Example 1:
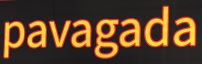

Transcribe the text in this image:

pavagada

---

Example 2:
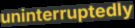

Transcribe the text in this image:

uninterruptedly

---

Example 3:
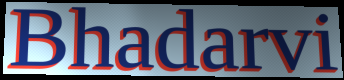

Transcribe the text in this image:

Bhadarvi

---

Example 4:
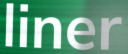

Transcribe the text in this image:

liner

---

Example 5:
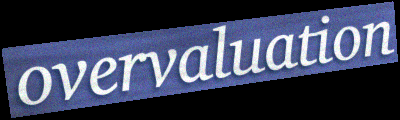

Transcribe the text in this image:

overvaluation